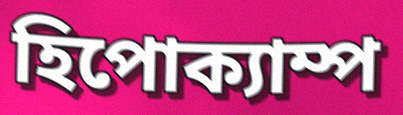
হিপোক্যাম্প